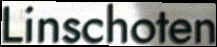
Linschoten